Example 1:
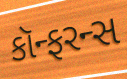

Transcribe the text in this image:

કૉન્ફરન્સ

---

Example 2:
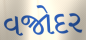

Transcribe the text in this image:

વજ્રોદર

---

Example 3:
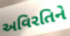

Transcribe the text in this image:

અવિરતિને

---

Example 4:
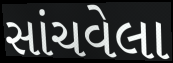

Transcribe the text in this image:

સાંચવેલા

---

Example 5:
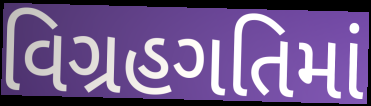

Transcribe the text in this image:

વિગ્રહગતિમાં